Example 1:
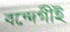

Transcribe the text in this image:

বন্দেগীই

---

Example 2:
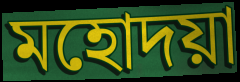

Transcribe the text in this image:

মহোদয়া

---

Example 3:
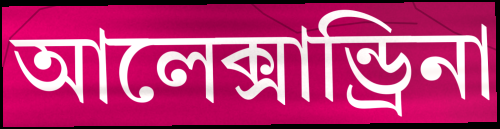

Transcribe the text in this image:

আলেক্সান্ড্রিনা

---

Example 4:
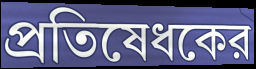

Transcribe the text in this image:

প্রতিষেধকের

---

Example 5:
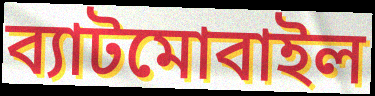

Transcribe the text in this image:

ব্যাটমোবাইল